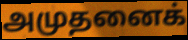
அமுதனைக்